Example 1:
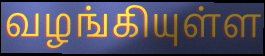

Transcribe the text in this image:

வழங்கியுள்ள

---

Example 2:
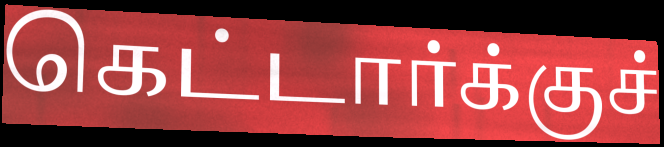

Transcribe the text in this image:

கெட்டார்க்குச்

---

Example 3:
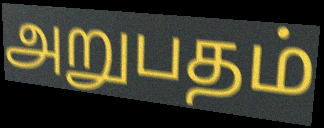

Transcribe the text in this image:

அறுபதம்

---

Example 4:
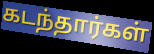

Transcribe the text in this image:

கடந்தார்கள்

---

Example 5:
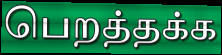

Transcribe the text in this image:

பெறத்தக்க